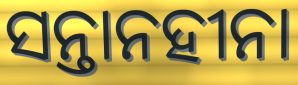
ସନ୍ତାନହୀନା